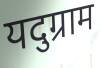
यदुग्राम